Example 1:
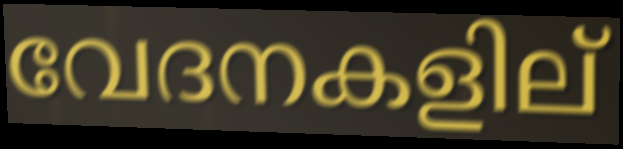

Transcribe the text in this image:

വേദനകളില്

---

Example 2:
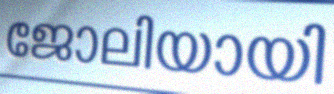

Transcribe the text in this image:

ജോലിയായി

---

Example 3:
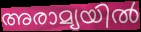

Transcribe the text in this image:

അരാമ്യയിൽ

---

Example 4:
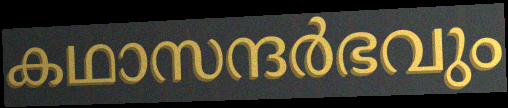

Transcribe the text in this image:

കഥാസന്ദർഭവും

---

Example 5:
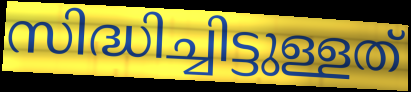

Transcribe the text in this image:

സിദ്ധിച്ചിട്ടുള്ളത്